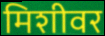
मिशीवर